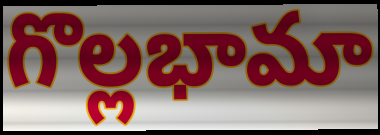
గొల్లభామా